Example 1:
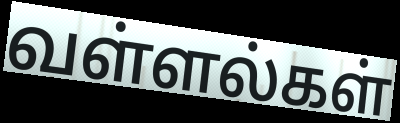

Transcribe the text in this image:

வள்ளல்கள்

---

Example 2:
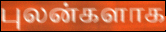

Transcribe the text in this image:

புலன்களாக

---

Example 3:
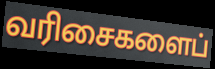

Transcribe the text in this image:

வரிசைகளைப்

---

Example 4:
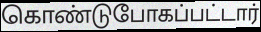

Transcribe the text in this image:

கொண்டுபோகப்பட்டார்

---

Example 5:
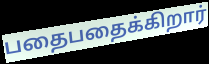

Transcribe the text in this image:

பதைபதைக்கிறார்